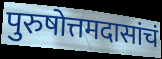
पुरुषोत्तमदासांचं